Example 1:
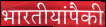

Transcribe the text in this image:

भारतीयांपैकी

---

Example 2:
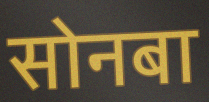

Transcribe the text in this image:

सोनबा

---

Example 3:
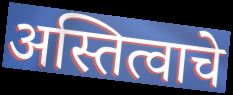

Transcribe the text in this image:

अस्तित्वाचे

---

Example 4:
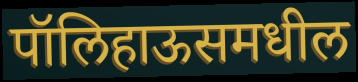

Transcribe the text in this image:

पॉलिहाऊसमधील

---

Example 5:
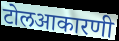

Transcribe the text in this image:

टोलआकारणी